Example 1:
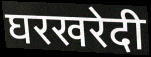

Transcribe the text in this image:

घरखरेदी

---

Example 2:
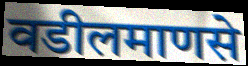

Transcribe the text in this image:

वडीलमाणसे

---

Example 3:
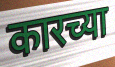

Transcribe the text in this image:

कारच्या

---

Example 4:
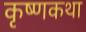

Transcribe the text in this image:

कृष्णकथा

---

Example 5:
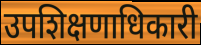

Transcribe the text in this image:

उपशिक्षणाधिकारी